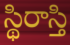
స్థిరాస్తి